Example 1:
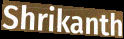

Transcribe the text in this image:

Shrikanth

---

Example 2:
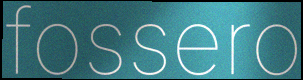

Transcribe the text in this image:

fossero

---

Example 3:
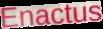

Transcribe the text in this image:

Enactus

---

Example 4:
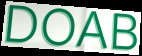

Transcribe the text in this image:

DOAB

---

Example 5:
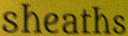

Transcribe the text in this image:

sheaths